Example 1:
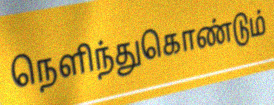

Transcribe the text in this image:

நெளிந்துகொண்டும்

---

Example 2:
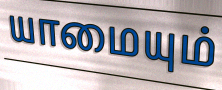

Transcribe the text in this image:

யாமையும்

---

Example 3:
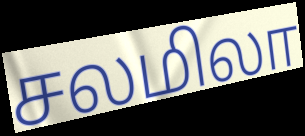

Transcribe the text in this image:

சலமிலா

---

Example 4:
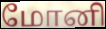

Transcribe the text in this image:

மோனி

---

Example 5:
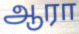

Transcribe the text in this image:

ஆரா